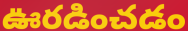
ఊరడించడం